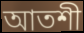
আতশী